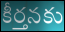
కీర్తనకు